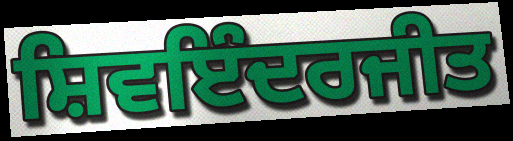
ਸ਼ਿਵਇੰਦਰਜੀਤ